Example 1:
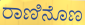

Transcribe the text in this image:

ರಾಣಿನೊಣ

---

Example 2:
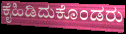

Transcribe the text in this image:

ಕೈಹಿಡಿದುಕೊಂಡರು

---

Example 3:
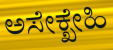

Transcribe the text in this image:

ಅಸೇಕ್ಖೇಹಿ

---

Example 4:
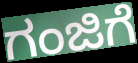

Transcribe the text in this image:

ಗಂಜಿಗೆ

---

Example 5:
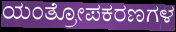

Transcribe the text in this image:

ಯಂತ್ರೋಪಕರಣಗಳ